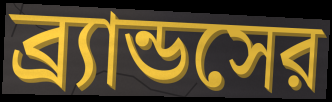
ব্র্যান্ডসের